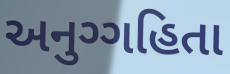
અનુગ્ગહિતા